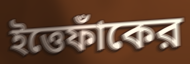
ইত্তেফাঁকের